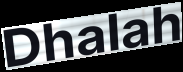
Dhalah